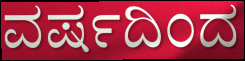
ವರ್ಷದಿಂದ